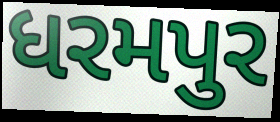
ધરમપુર